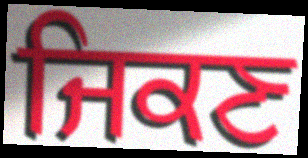
ਜਿਕਣ